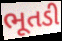
ભૂતડી